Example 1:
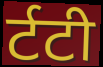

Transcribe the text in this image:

र्टटी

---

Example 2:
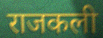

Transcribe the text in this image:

राजकली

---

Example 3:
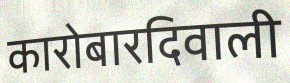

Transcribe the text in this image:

कारोबारदिवाली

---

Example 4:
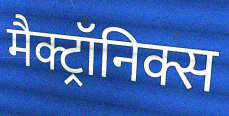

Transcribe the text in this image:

मैक्ट्रॉनिक्स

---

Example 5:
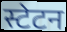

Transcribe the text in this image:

स्टेटन